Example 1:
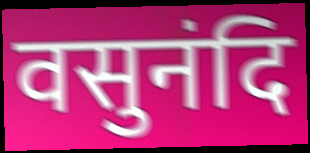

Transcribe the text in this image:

वसुनंदि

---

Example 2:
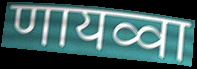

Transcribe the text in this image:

णायव्वा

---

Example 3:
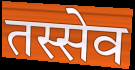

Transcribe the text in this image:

तस्सेव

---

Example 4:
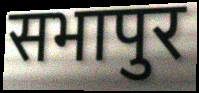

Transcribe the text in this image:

सभापुर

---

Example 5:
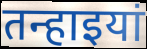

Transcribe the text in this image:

तन्हाइयां